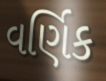
વર્ણિક